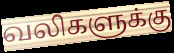
வலிகளுக்கு